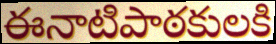
ఈనాటిపాఠకులకి